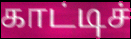
காட்டிச்